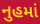
નુહમાં